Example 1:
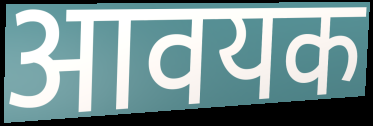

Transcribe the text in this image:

आवयक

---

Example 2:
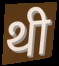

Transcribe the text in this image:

थी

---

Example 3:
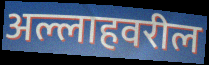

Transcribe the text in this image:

अल्लाहवरील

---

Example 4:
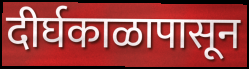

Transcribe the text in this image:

दीर्घकाळापासून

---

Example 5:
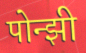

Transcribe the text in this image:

पोन्झी